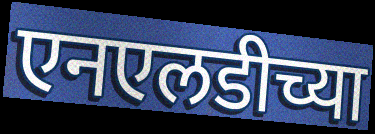
एनएलडीच्या